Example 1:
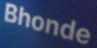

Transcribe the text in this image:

Bhonde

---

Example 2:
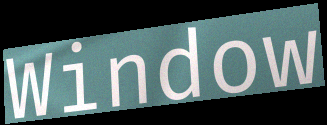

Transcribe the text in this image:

Window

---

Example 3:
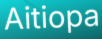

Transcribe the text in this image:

Aitiopa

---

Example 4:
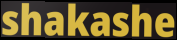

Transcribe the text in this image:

shakashe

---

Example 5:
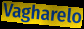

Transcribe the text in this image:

Vagharelo